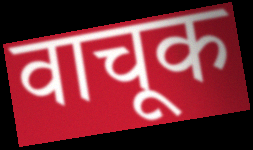
वाचूक